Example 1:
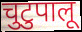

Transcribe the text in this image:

चुटुपालू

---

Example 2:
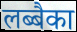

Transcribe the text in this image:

लब्बैका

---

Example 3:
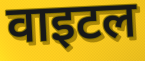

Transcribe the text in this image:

वाइटल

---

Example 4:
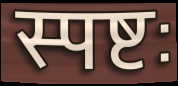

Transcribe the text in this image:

स्पष्टः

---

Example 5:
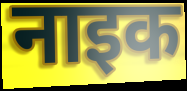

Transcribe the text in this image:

नाइक